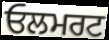
ਓਲਮਰਟ